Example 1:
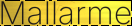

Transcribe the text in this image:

Mallarme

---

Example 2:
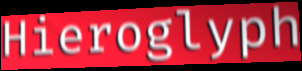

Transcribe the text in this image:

Hieroglyph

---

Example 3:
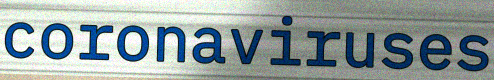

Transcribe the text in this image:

coronaviruses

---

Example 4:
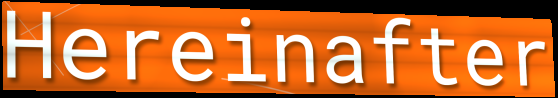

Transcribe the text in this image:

Hereinafter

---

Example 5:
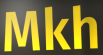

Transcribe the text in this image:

Mkh